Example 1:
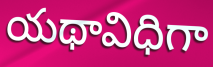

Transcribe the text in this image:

యథావిధిగా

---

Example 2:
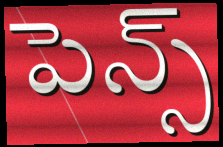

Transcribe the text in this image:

పెన్స్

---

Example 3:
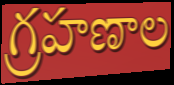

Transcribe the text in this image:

గ్రహణాల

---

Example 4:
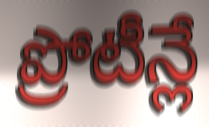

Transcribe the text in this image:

ప్రోటీన్లే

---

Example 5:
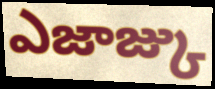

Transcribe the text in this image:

ఎజాజ్కు